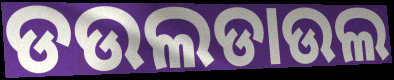
ଡଉଲଡାଉଲ